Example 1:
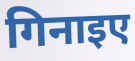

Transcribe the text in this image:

गिनाइए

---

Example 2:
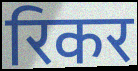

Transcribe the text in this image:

रिकर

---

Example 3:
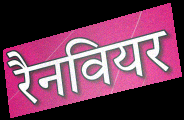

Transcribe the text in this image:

रैनवियर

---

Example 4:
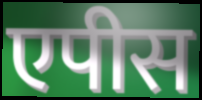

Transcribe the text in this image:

एपीस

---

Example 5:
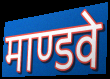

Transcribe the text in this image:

माण्डवे